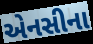
એનસીના